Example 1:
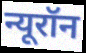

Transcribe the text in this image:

न्यूरॉन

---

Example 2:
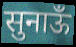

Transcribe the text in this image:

सुनाऊँ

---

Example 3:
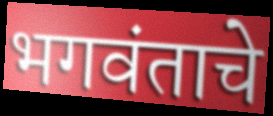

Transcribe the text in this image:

भगवंताचे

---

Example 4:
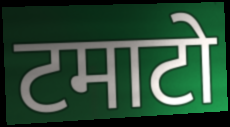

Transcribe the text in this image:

टमाटो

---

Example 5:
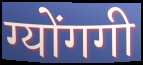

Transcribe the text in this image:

ग्योंगगी